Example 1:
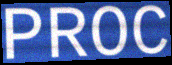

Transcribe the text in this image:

PROC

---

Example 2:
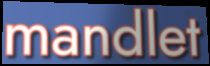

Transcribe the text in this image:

mandlet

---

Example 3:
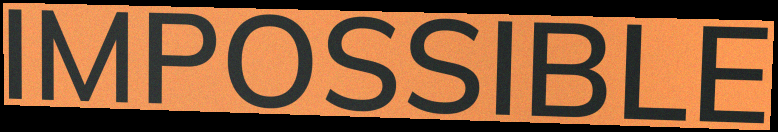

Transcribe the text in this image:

IMPOSSIBLE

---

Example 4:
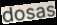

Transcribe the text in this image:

dosas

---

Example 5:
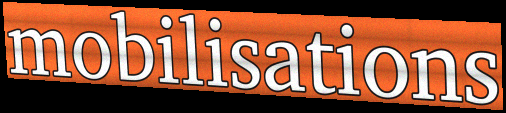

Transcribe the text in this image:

mobilisations